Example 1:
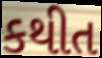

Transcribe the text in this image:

કથીત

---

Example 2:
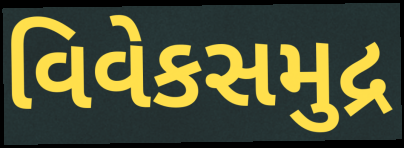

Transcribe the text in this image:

વિવેકસમુદ્ર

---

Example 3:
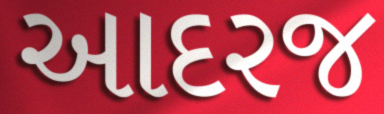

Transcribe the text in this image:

આદરજ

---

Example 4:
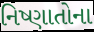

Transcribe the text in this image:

નિષ્ણાતોના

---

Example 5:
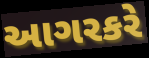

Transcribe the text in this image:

આગરકરે